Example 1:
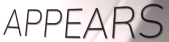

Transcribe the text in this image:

APPEARS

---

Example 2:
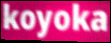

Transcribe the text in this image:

koyoka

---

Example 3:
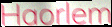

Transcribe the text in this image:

Haorlem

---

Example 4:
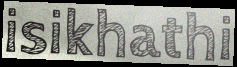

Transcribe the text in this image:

isikhathi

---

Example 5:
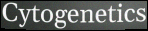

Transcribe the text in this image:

Cytogenetics